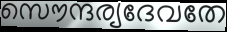
സൌന്ദര്യദേവതേ